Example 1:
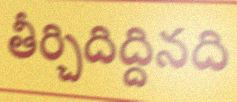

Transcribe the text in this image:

తీర్చిదిద్దినది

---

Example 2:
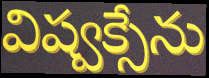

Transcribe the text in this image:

విష్వక్సేను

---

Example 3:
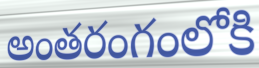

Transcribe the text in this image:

అంతరంగంలోకి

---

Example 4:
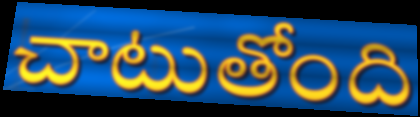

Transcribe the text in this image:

చాటుతోంది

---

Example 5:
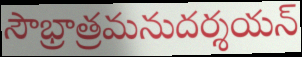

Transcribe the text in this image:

సౌభ్రాత్రమనుదర్శయన్